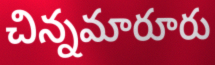
చిన్నమారూరు